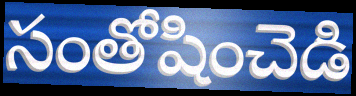
సంతోషించెడి